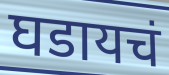
घडायचं